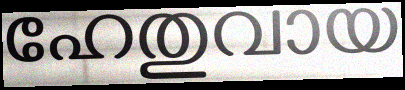
ഹേതുവായ